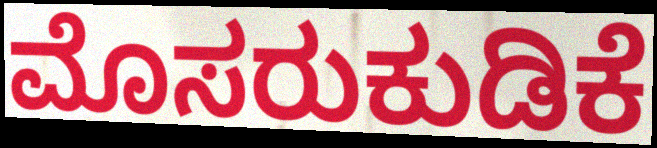
ಮೊಸರುಕುಡಿಕೆ